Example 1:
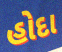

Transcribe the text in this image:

હોદા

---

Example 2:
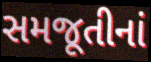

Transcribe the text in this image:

સમજૂતીનાં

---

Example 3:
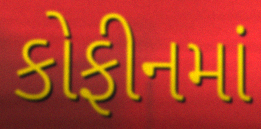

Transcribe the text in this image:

કોફીનમાં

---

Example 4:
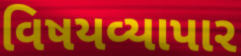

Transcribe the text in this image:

વિષયવ્યાપાર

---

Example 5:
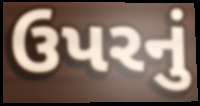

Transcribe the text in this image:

ઉપરનું